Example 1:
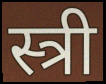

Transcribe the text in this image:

स्त्री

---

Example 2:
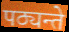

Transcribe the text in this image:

पठ्यन्ते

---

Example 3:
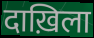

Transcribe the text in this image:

दाख़िला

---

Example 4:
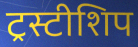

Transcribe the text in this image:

ट्रस्टीशिप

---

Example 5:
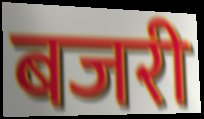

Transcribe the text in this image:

बजरी